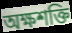
অক্ষশক্তি